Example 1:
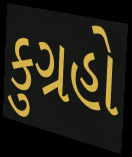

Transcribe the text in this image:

કુગ્રહો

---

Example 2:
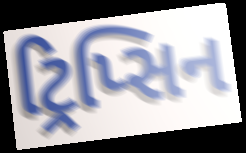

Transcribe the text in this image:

ટ્રિપ્સિન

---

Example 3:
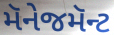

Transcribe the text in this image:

મૅનેજમૅન્ટ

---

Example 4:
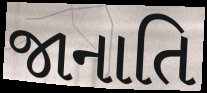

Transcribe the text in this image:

જાનાતિ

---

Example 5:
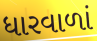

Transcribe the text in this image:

ધારવાળાં